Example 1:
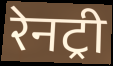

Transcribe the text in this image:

रेनट्री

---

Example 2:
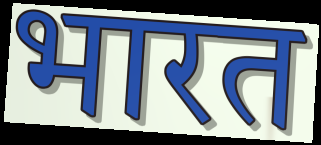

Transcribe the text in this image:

भारत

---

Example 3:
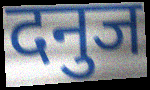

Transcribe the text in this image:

दनुज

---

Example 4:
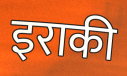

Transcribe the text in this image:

इराकी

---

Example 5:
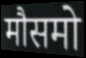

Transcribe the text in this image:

मौसमो